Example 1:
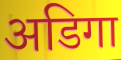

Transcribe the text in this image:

अडिगा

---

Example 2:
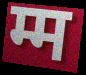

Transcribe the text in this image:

म्म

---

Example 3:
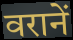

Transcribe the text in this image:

वरानें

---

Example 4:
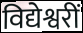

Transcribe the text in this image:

विद्येश्वरीं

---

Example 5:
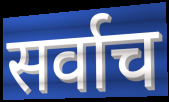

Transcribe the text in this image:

सर्वाच